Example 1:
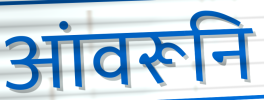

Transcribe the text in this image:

आंवरूनि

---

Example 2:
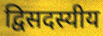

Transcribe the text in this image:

द्विसदस्यीय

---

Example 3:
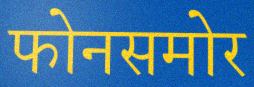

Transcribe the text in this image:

फोनसमोर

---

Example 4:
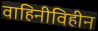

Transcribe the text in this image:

वाहिनीविहीन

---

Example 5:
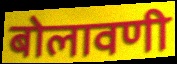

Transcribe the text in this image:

बोलावणी